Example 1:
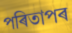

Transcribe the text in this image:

পৰিতাপৰ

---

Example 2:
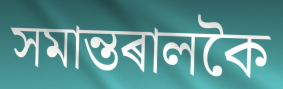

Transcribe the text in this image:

সমান্তৰালকৈ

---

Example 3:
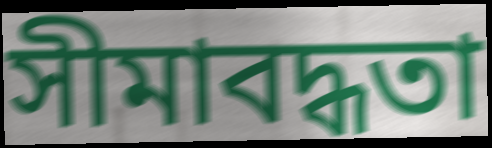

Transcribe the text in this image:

সীমাবদ্ধতা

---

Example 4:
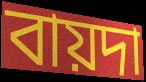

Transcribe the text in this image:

বায়দা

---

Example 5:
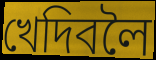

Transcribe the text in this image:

খেদিবলৈ